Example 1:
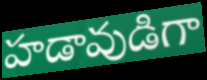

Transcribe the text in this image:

హడావుడిగా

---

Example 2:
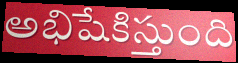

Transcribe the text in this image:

అభిషేకిస్తుంది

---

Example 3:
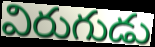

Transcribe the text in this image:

విరుగుడు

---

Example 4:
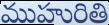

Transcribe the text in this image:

ముహురితి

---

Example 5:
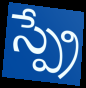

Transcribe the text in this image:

స్ప్రే